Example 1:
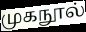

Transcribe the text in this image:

முகநூல்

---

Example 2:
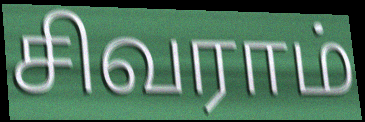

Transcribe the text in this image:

சிவராம்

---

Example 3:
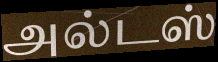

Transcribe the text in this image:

அல்டஸ்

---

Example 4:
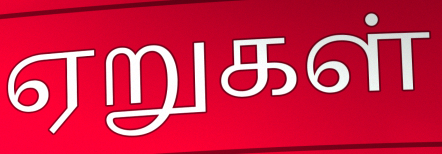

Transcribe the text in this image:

ஏறுகள்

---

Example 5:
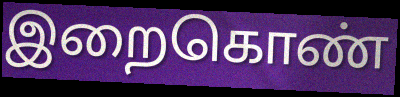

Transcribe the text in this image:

இறைகொண்